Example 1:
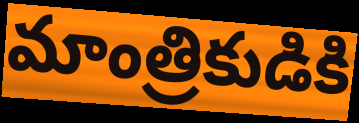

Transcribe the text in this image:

మాంత్రికుడికి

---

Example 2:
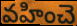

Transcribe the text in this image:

వహించె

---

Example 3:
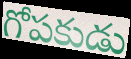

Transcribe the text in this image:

గోపకుడు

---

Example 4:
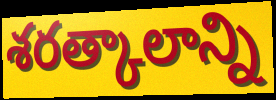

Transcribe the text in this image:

శరత్కాలాన్ని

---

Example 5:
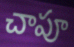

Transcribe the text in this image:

చాపూ